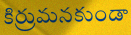
కిర్రుమనకుండా